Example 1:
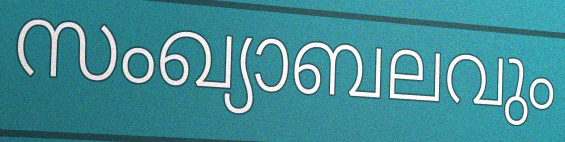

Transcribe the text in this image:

സംഖ്യാബലവും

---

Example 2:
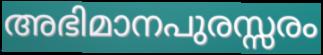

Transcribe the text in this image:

അഭിമാനപുരസ്സരം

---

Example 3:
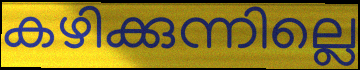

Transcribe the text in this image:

കഴിക്കുന്നില്ലെ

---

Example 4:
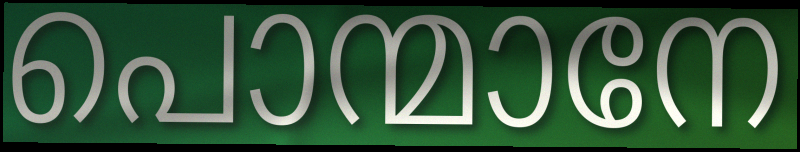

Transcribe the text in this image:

പൊന്മാനേ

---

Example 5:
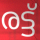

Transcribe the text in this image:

രട്ട്